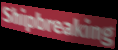
Shipbreaking